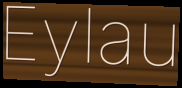
Eylau